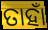
ତାହାଁ